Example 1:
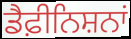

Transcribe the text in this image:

ਡੈਫ਼ੀਨਿਸ਼ਨਾਂ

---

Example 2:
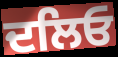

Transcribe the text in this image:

ਦਲਿਓ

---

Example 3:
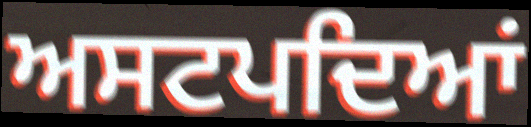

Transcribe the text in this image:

ਅਸਟਪਦਿਆਂ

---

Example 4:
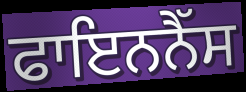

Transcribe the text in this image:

ਫਾਇਨਨੈੱਸ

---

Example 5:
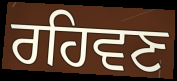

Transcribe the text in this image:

ਰਹਿਵਣ